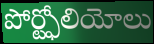
పోర్ట్ఫోలియోలు